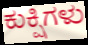
ಕುಕ್ಷಿಗಳು